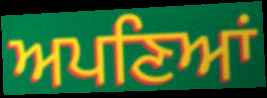
ਅਪਣਿਆਂ